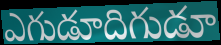
ఎగుడూదిగుడూ